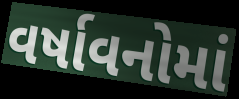
વર્ષાવનોમાં